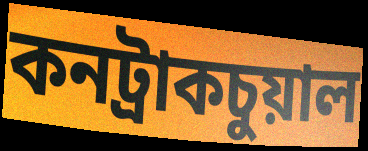
কনট্রাকচুয়াল